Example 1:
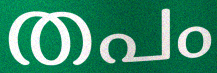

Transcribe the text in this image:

തപം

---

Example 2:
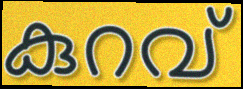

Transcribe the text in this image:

കുറവ്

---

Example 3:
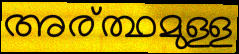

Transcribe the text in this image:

അര്ത്ഥമുള്ള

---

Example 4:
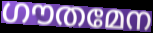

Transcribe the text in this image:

ഗൗതമേന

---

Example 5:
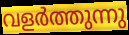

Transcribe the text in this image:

വളർത്തുന്നു